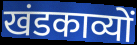
खंडकाव्यों